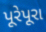
પૂરેપૂરા